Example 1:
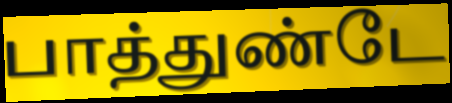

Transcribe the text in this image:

பாத்துண்டே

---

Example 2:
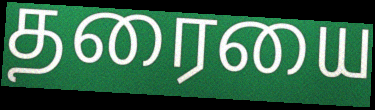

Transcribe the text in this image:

தரையை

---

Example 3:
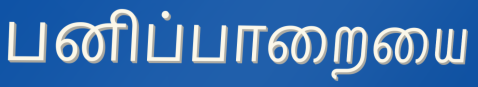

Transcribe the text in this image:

பனிப்பாறையை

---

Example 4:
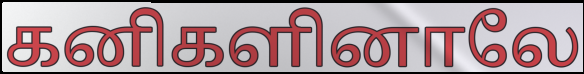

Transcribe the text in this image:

கனிகளினாலே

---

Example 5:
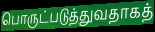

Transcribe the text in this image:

பொருட்படுத்துவதாகத்